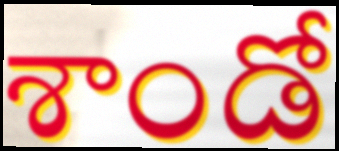
శాండో